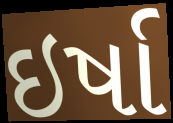
ઇર્ષા